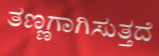
ತಣ್ಣಗಾಗಿಸುತ್ತದೆ